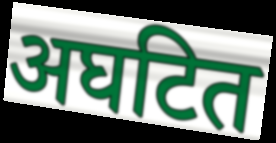
अघटित